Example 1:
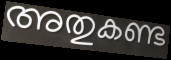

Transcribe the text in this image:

അതുകണ്ട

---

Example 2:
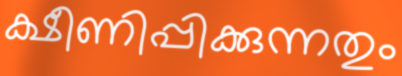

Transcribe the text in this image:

ക്ഷീണിപ്പിക്കുന്നതും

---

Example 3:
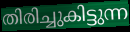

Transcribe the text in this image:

തിരിച്ചുകിട്ടുന്ന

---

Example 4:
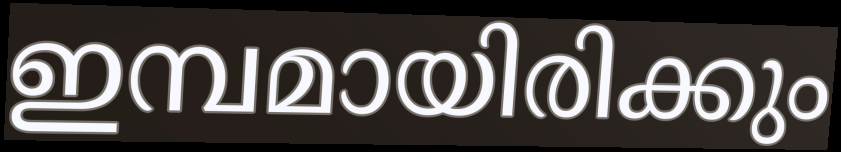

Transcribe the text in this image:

ഇമ്പമായിരിക്കും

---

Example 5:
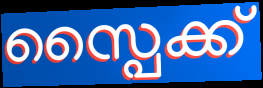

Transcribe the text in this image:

സ്പൈക്ക്